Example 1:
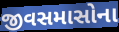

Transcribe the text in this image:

જીવસમાસોના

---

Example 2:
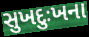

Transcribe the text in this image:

સુખદુઃખના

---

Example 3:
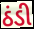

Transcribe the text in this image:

ઠંડી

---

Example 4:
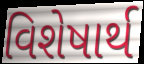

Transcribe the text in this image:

વિશેષાર્થ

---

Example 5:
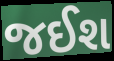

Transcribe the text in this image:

જઈશ